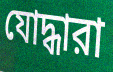
যোদ্ধারা